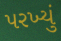
પરખ્યું